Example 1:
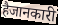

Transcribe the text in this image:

हैजानकारी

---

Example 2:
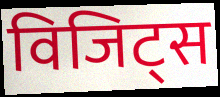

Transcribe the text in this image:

विजिट्स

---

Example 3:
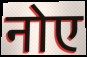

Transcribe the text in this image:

नोए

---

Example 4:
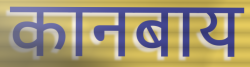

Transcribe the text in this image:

कानबाय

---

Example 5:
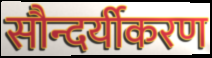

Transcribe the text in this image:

सौन्दर्यीकरण